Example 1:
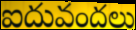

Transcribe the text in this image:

ఐదువందలు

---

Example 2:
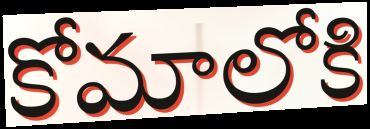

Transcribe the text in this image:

కోమాలోకి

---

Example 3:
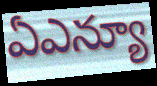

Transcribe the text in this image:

ఏఎన్యూ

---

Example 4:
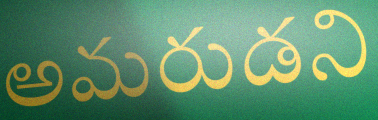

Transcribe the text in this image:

అమరుడని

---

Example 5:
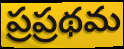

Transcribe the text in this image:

ప్రప్రథమ